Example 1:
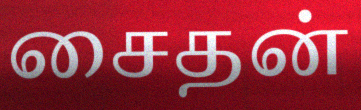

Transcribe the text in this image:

சைதன்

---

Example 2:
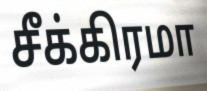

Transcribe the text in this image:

சீக்கிரமா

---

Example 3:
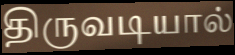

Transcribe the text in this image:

திருவடியால்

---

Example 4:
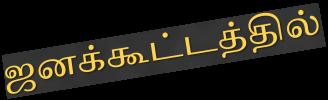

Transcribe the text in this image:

ஜனக்கூட்டத்தில்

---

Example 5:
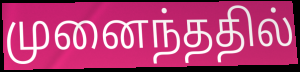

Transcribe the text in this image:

முனைந்ததில்